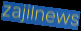
zajilnews